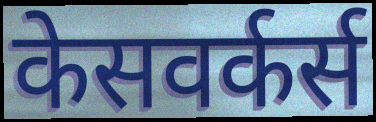
केसवर्कर्स